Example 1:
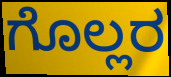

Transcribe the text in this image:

ಗೊಲ್ಲರ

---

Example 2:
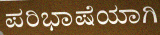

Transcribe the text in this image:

ಪರಿಭಾಷೆಯಾಗಿ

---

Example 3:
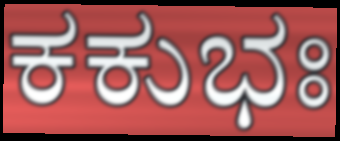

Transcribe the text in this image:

ಕಕುಭಃ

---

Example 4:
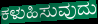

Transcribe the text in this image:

ಕಳುಹಿಸುವುದು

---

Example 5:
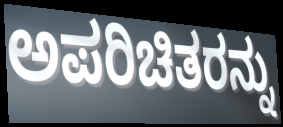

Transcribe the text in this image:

ಅಪರಿಚಿತರನ್ನು